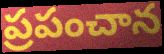
ప్రపంచాన